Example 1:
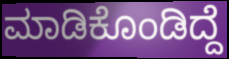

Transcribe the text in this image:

ಮಾಡಿಕೊಂಡಿದ್ದೆ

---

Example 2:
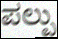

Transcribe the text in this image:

ಪಲ್ಪು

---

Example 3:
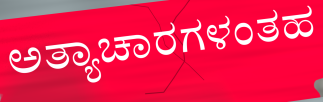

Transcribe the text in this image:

ಅತ್ಯಾಚಾರಗಳಂತಹ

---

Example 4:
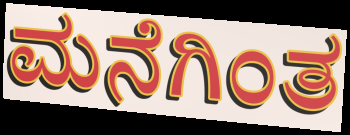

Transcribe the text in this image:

ಮನೆಗಿಂತ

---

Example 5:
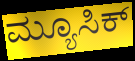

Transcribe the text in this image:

ಮ್ಯೂಸಿಕ್